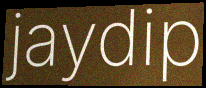
jaydip